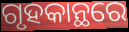
ଗୃହକାନ୍ଥରେ